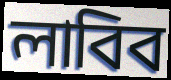
লাবিব